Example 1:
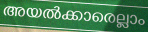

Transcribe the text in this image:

അയൽക്കാരെല്ലാം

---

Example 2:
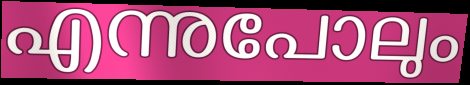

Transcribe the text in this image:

എന്നുപോലും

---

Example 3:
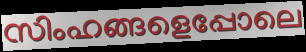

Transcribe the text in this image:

സിംഹങ്ങളെപ്പോലെ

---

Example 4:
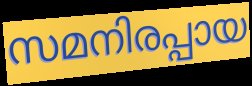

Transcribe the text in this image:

സമനിരപ്പായ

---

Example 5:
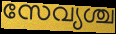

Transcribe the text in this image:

സേവ്യശ്ച